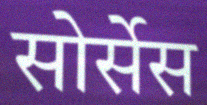
सोर्सेस